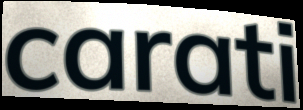
carati